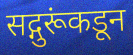
सद्गुरूंकडून